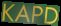
KAPD